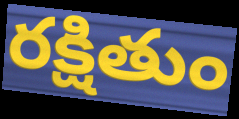
రక్షితుం